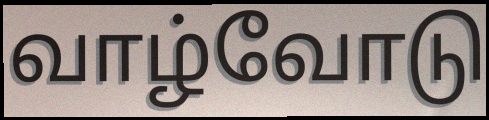
வாழ்வோடு